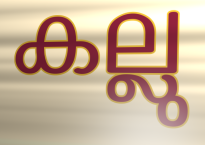
കല്ലു